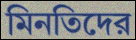
মিনতিদের